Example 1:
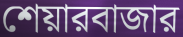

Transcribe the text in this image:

শেয়ারবাজার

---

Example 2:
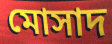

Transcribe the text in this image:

মোসাদ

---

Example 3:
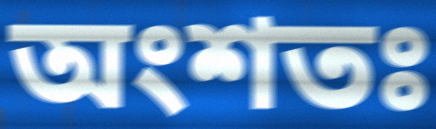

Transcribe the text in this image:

অংশতঃ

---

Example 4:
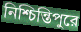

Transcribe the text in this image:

নিশ্চিন্তিপুরে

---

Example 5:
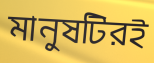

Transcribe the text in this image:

মানুষটিরই